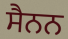
ਸੈਨਨ